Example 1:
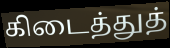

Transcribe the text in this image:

கிடைத்துத்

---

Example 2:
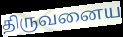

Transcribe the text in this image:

திருவனைய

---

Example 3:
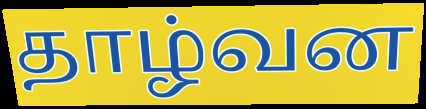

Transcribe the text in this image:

தாழ்வன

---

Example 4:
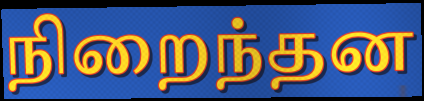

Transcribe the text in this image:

நிறைந்தன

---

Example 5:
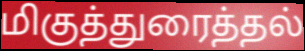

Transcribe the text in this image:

மிகுத்துரைத்தல்